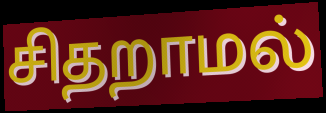
சிதறாமல்